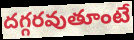
దగ్గరవుతూంటే